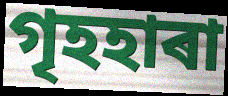
গৃহহাৰা